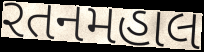
રતનમહાલ